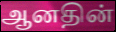
ஆனதின்